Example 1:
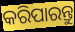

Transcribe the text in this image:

କରିପାରନ୍ତୁ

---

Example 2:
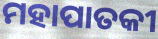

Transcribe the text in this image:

ମହାପାତକୀ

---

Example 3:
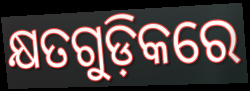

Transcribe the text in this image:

କ୍ଷତଗୁଡ଼ିକରେ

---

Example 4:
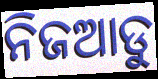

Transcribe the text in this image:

ନିଜଆଡୁ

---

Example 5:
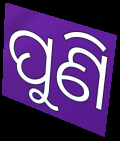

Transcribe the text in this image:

ପୁଣି